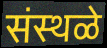
संस्थळे